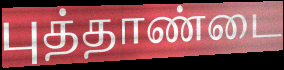
புத்தாண்டை